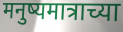
मनुष्यमात्राच्या